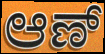
ಆಣ್